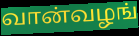
வான்வழங்